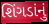
શિંગડાંનું